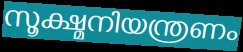
സൂക്ഷ്മനിയന്ത്രണം